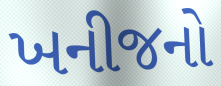
ખનીજનો